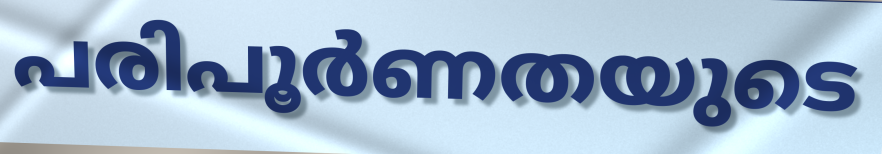
പരിപൂർണതയുടെ